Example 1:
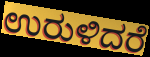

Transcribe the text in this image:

ಉರುಳಿದರೆ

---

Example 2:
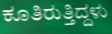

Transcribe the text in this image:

ಕೂತಿರುತ್ತಿದ್ದಳು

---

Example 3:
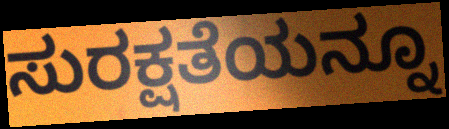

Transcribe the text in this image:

ಸುರಕ್ಷತೆಯನ್ನೂ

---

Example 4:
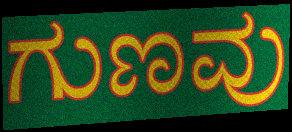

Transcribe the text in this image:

ಗುಣವು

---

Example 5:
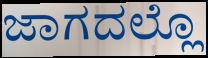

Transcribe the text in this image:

ಜಾಗದಲ್ಲೊ